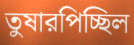
তুষারপিচ্ছিল